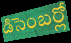
డిసెంబర్లో